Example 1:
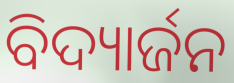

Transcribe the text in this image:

ବିଦ୍ୟାର୍ଜନ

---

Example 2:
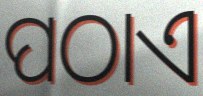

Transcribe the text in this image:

ପଠାଏ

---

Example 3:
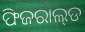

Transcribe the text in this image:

ଫିଜରାଲ୍‌ଡ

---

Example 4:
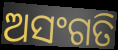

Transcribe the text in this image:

ଅସଂଗତି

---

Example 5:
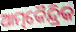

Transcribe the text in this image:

ଆତ୍ମକୈନ୍ଦ୍ରିକ